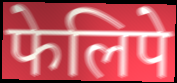
फेलिपे